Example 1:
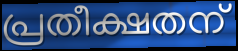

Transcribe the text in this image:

പ്രതീക്ഷതന്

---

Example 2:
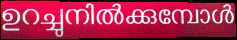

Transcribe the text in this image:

ഉറച്ചുനിൽക്കുമ്പോൾ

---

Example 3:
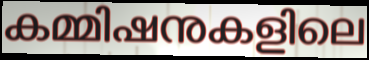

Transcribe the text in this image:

കമ്മിഷനുകളിലെ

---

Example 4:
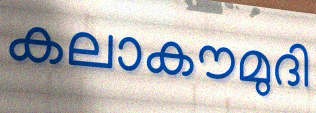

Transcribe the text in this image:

കലാകൗമുദി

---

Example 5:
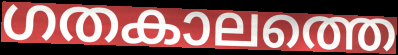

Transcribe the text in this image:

ഗതകാലത്തെ